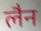
लैन